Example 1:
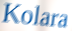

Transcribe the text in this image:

Kolara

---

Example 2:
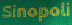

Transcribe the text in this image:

Sinopoli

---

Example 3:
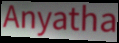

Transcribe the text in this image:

Anyatha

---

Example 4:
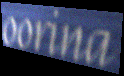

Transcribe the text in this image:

oorina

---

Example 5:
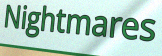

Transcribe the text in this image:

Nightmares